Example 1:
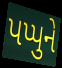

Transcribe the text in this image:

પપ્પુને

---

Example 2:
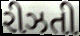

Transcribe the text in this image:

રીઝતી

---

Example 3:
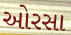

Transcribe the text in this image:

ઓરસા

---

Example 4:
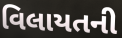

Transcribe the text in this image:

વિલાયતની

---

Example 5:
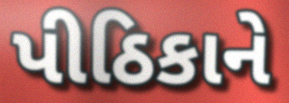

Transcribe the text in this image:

પીઠિકાને